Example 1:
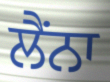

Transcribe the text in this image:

ਲੈਂਨਾ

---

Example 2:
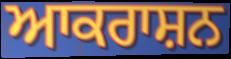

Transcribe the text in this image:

ਆਕਰਾਸ਼ਨ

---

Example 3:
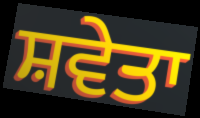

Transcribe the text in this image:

ਸ਼ਵੇਤਾ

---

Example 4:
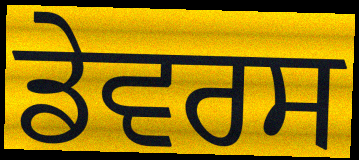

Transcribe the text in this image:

ਡੇਵਰਸ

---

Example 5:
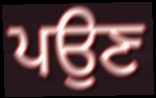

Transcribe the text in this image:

ਪਉਣ